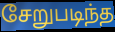
சேறுபடிந்த